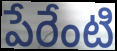
పేరేంటి